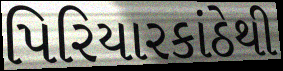
પિરિયારકાંઠેથી